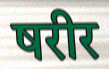
षरीर